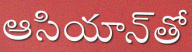
ఆసియాన్‌తో